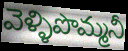
వెళ్ళిపొమ్మనీ